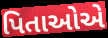
પિતાઓએ